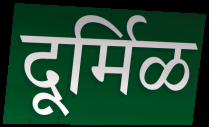
दूर्मिळ